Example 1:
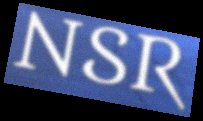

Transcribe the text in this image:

NSR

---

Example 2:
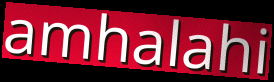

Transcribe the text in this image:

amhalahi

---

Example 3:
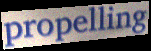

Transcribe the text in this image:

propelling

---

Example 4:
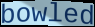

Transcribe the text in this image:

bowled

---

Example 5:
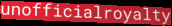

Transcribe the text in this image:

unofficialroyalty